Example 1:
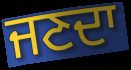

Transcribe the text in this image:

ਜਣਦਾ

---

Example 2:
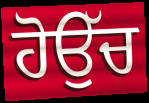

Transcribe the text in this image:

ਹੋਉੱਚ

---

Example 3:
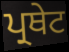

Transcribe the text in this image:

ਪ੍ਰਥੇਟ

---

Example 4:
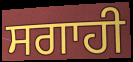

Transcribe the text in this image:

ਸਗਾਹੀ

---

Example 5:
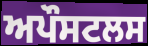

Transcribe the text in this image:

ਅਪੌਸਟਲਸ